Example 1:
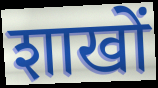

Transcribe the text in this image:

शाखों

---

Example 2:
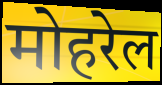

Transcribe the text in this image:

मोहरेल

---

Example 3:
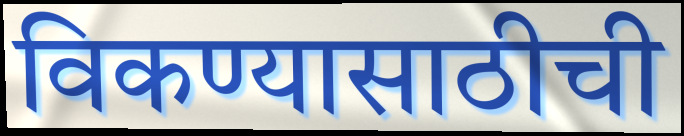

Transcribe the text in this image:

विकण्यासाठीची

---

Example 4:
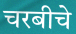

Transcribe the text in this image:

चरबीचे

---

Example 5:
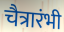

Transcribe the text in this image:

चैत्रारंभी